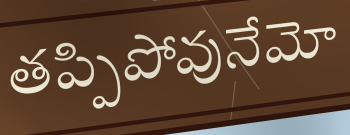
తప్పిపోవునేమో